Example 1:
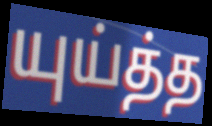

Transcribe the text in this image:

யுய்த்த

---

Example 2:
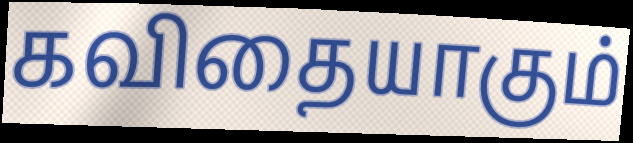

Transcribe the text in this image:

கவிதையாகும்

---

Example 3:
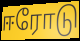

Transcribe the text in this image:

ஈரோடு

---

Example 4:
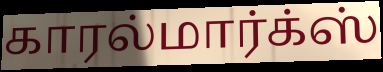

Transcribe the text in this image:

காரல்மார்க்ஸ்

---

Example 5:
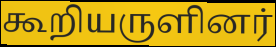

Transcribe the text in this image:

கூறியருளினர்